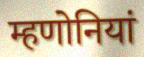
म्हणोनियां